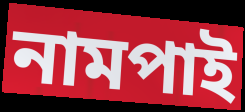
নামপাই